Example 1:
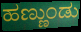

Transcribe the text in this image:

ಹಣ್ಣುಂಡು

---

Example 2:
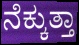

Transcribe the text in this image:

ನೆಕ್ಕುತ್ತಾ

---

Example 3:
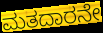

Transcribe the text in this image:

ಮತದಾರನೇ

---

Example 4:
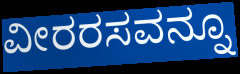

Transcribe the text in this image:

ವೀರರಸವನ್ನೂ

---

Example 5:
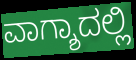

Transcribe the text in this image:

ವಾಗ್ಶಾದಲ್ಲಿ